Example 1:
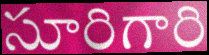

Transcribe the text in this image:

సూరిగారి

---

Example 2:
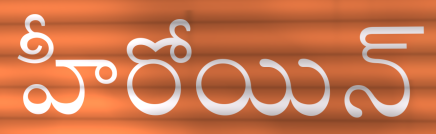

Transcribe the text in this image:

హీరోయిన్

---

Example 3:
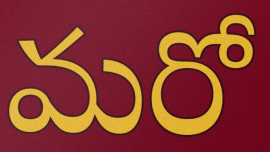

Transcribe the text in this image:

మరో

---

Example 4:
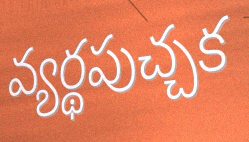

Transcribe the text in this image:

వ్యర్థపుచ్చక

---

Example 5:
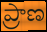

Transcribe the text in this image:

ప్రాణ